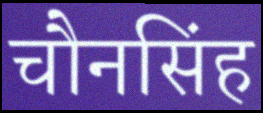
चौनसिंह